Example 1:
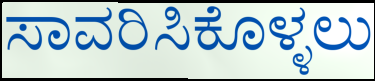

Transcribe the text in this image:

ಸಾವರಿಸಿಕೊಳ್ಳಲು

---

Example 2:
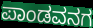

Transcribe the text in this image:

ಪಾಂಡವನಗ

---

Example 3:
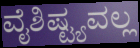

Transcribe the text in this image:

ವೈಶಿಷ್ಟ್ಯವಲ್ಲ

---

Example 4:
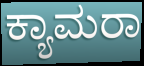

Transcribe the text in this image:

ಕ್ಯಾಮರಾ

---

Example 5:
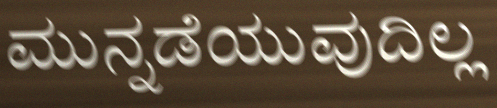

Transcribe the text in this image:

ಮುನ್ನಡೆಯುವುದಿಲ್ಲ